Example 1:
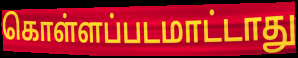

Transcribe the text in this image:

கொள்ளப்படமாட்டாது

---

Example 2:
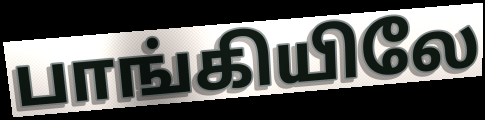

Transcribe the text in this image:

பாங்கியிலே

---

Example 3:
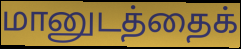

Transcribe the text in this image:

மானுடத்தைக்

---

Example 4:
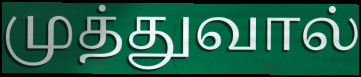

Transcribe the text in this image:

முத்துவால்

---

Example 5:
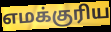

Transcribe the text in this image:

எமக்குரிய